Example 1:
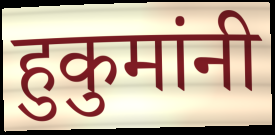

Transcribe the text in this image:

हुकुमांनी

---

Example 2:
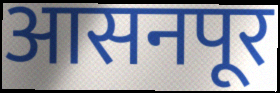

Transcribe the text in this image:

आसनपूर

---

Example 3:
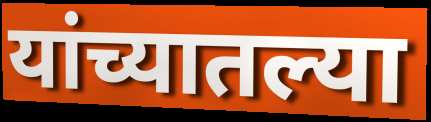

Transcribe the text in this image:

यांच्यातल्या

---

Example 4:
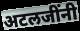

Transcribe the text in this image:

अटलजींनी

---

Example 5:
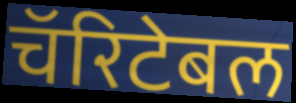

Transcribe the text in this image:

चॅरिटेबल